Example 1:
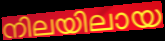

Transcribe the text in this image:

നിലയിലായ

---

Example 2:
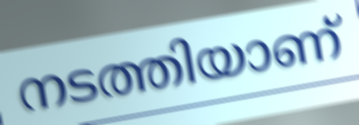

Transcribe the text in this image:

നടത്തിയാണ്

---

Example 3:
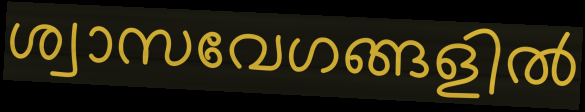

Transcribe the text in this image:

ശ്വാസവേഗങ്ങളിൽ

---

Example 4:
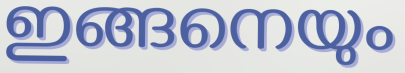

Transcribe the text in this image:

ഇങ്ങനെയും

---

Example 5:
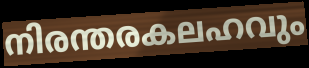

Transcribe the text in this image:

നിരന്തരകലഹവും